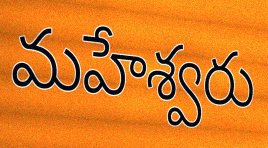
మహేశ్వరు